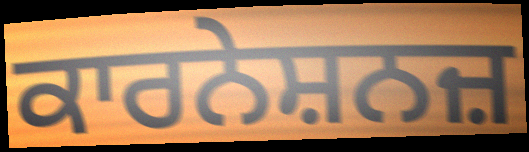
ਕਾਰਨੇਸ਼ਨਜ਼